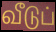
வீடுப்